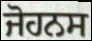
ਜੋਹਨਸ